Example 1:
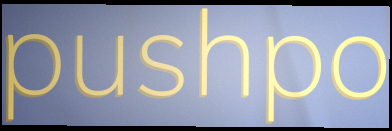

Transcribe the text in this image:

pushpo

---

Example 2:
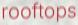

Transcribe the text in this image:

rooftops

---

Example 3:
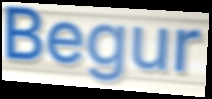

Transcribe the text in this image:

Begur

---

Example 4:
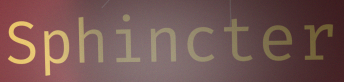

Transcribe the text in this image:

Sphincter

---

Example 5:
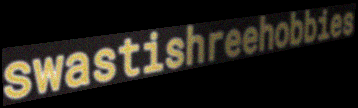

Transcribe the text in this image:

swastishreehobbies